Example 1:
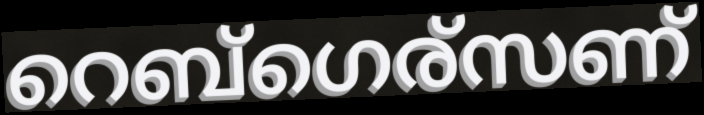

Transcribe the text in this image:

റെബ്ഗെര്സണ്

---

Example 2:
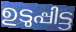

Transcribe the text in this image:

ഉടുപ്പിട്ട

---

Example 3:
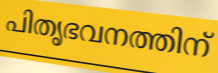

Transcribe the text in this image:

പിതൃഭവനത്തിന്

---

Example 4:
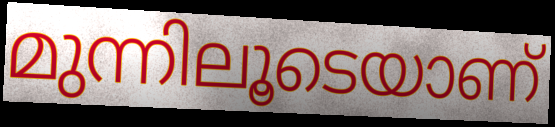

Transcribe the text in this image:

മുന്നിലൂടെയാണ്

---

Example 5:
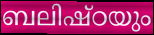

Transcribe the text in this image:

ബലിഷ്ഠയും